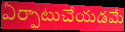
ఏర్పాటుచేయడమే